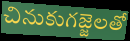
చినుకుగజ్జెలతో